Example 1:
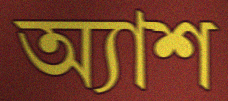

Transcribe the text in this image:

অ্যাশ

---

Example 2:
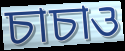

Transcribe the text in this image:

চাচাও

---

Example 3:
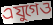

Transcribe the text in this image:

এযুগেও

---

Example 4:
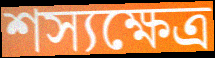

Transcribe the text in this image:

শস্যক্ষেত্র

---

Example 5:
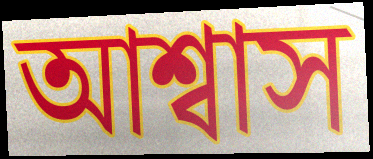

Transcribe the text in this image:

আশ্বাস